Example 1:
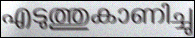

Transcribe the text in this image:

എടുത്തുകാണിച്ചു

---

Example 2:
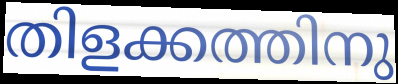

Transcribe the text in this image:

തിളക്കത്തിനു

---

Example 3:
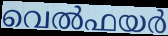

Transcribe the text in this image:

വെൽഫയർ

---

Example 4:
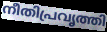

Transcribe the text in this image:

നീതിപ്രവൃത്തി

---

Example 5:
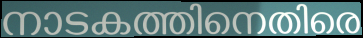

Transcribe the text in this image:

നാടകത്തിനെതിരെ